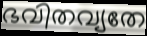
ഭവിതവ്യതേ